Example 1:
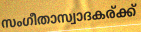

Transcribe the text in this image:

സംഗീതാസ്വാദകര്ക്ക്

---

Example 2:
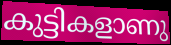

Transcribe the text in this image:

കുട്ടികളാണു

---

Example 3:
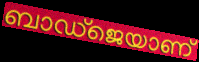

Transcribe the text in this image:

ബാഡ്ജെയാണ്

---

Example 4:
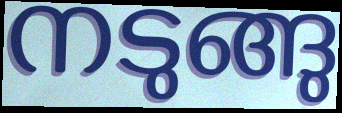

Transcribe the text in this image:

നടുങ്ങു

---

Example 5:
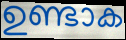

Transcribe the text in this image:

ഉണ്ടാക